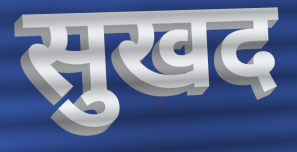
सुखद